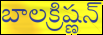
బాలక్రిష్ణన్